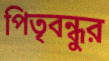
পিতৃবন্ধুর